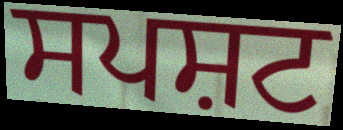
ਸਪਸ਼ਟ